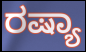
ರಷ್ಯಾ